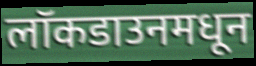
लॉकडाउनमधून